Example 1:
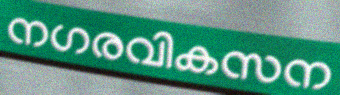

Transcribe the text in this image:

നഗരവികസന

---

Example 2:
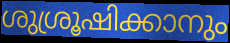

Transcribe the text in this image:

ശുശ്രൂഷിക്കാനും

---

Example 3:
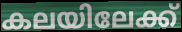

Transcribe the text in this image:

കലയിലേക്ക്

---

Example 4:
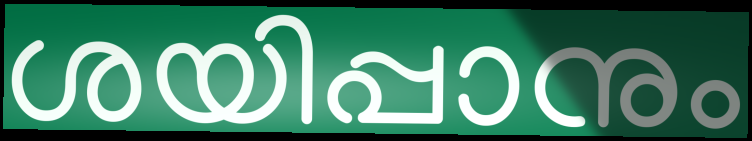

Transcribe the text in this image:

ശയിപ്പാനും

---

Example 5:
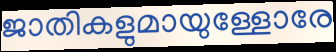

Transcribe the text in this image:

ജാതികളുമായുള്ളോരേ